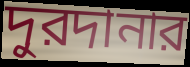
দুরদানার